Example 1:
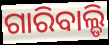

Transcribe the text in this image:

ଗାରିବାଲ୍ଡି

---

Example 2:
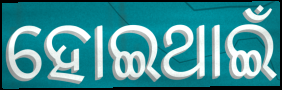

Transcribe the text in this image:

ହୋଇଥାଇଁ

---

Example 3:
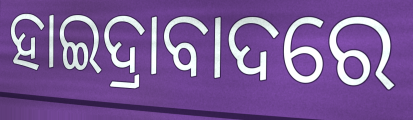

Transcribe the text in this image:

ହାଇଦ୍ରାବାଦରେ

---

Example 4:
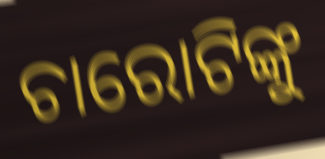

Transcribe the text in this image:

ଚାରୋଟିଙ୍କୁ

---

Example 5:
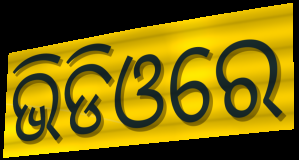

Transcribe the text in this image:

ଭିଡିଓରେ